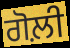
ਗੋਲ਼ੀ